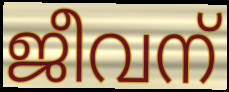
ജീവന്